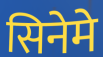
सिनेमे